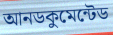
আনডকুমেন্টেড